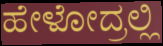
ಹೇಳೋದ್ರಲ್ಲಿ